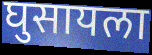
घुसायला